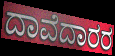
ದಾವೆದಾರರ